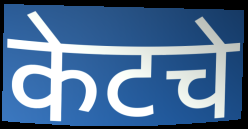
केटचे